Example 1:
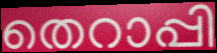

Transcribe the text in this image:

തെറാപ്പി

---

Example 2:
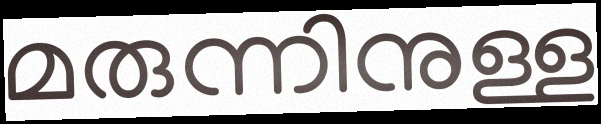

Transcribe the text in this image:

മരുന്നിനുള്ള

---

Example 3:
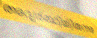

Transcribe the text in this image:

അഭ്യർത്ഥിച്ചിരുന്നു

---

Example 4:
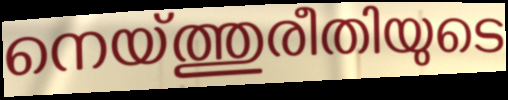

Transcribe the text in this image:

നെയ്ത്തുരീതിയുടെ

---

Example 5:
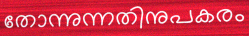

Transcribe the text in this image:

തോന്നുന്നതിനുപകരം